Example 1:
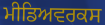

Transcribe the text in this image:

ਮੀਡਿਅਵਰਕਸ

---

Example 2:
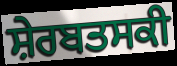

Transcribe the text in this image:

ਸ਼ੇਰਬਤਸਕੀ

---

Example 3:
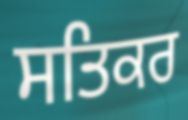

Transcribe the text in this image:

ਸਤਿਕਰ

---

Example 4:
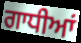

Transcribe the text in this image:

ਗਾਧੀਆਂ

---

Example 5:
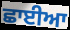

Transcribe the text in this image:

ਛਾਈਆ